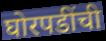
घोरपडींची